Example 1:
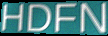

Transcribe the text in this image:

HDFN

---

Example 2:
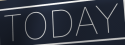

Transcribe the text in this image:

TODAY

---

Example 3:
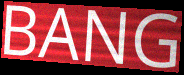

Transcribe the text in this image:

BANG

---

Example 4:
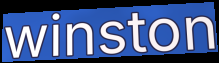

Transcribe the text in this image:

winston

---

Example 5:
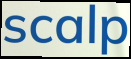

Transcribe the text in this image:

scalp